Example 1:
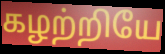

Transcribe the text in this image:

கழற்றியே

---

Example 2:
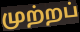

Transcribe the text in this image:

முற்றப்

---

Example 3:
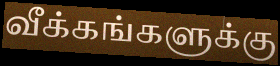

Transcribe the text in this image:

வீக்கங்களுக்கு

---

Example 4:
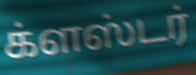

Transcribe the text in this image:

க்ளஸ்டர்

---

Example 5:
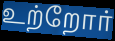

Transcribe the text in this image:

உற்றோர்